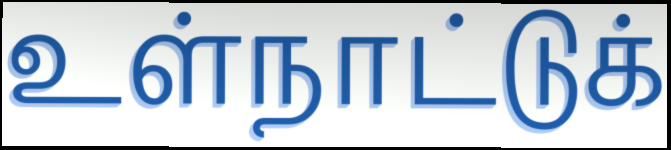
உள்நாட்டுக்